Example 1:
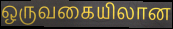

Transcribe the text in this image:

ஒருவகையிலான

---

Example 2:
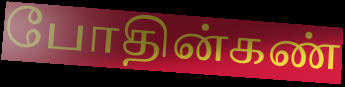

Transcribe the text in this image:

போதின்கண்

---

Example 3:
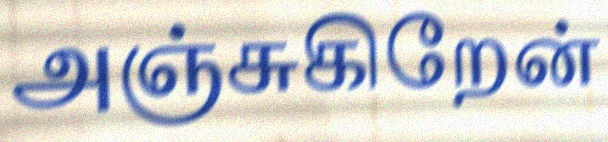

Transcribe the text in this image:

அஞ்சுகிறேன்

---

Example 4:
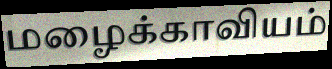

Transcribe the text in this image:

மழைக்காவியம்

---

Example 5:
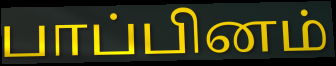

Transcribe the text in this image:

பாப்பினம்